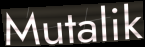
Mutalik